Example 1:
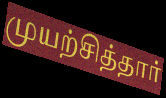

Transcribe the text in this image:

முயற்சித்தார்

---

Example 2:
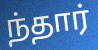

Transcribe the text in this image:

ந்தார்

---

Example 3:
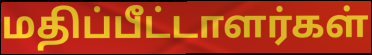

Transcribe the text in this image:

மதிப்பீட்டாளர்கள்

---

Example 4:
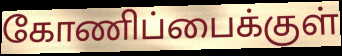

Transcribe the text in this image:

கோணிப்பைக்குள்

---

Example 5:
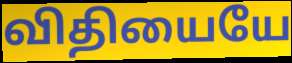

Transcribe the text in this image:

விதியையே